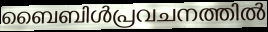
ബൈബിൾപ്രവചനത്തിൽ